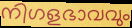
നിഗളഭാവവും